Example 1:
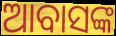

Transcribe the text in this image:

ଆବାସଙ୍କ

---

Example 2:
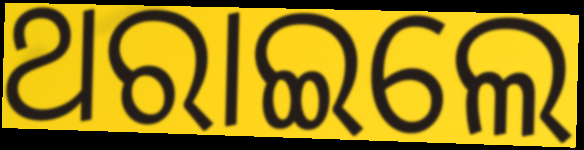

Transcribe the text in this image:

ଥରାଇଲେ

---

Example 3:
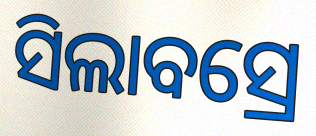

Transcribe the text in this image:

ସିଲାବସ୍ରେ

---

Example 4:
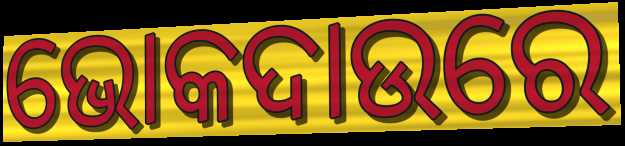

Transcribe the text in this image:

ଭୋକଦାଉରେ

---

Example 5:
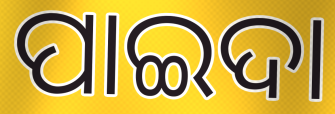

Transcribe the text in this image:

ପାଇଦା